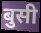
बुसी